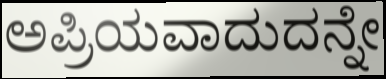
ಅಪ್ರಿಯವಾದುದನ್ನೇ